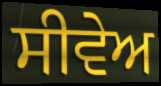
ਸੀਵੇਅ